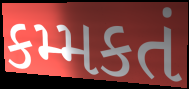
કમ્મકતં